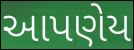
આપણેય